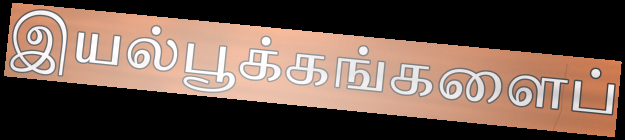
இயல்பூக்கங்களைப்